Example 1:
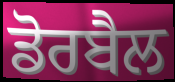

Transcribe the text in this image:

ਡੋਰਬੈਲ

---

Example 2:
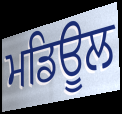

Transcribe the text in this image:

ਮਡਿਊਲ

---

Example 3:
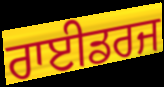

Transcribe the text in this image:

ਰਾਈਡਰਜ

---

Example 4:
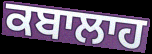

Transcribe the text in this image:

ਕਬਾਲਾਹ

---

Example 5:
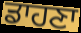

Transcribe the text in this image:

ਡਾਹਣਾ